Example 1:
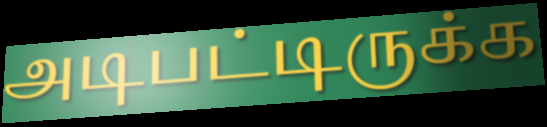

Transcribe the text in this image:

அடிபட்டிருக்க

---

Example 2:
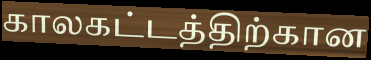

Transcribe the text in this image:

காலகட்டத்திற்கான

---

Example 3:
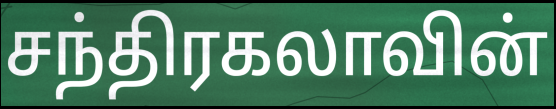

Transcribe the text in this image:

சந்திரகலாவின்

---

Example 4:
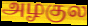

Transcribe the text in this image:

அழகுல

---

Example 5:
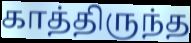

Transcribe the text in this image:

காத்திருந்த